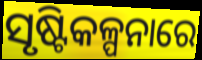
ସୃଷ୍ଟିକଳ୍ପନାରେ